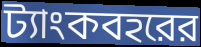
ট্যাংকবহরের